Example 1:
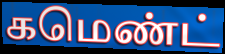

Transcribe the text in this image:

கமெண்ட்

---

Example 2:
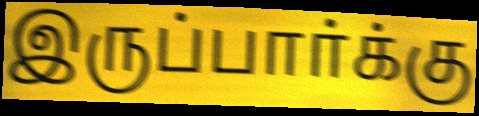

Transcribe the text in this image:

இருப்பார்க்கு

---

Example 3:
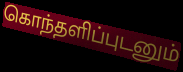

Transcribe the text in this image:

கொந்தளிப்புடனும்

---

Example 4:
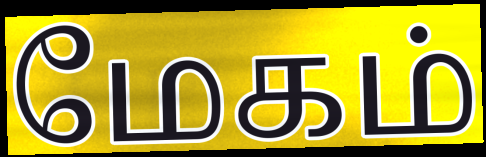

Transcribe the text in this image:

மேகம்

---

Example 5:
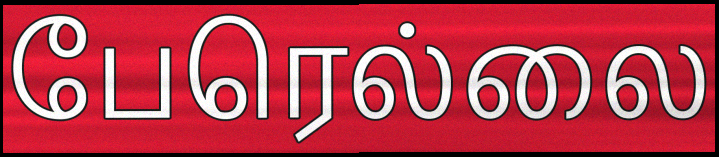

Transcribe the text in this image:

பேரெல்லை